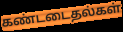
கண்டடைதல்கள்